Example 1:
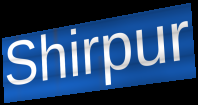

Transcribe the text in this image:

Shirpur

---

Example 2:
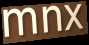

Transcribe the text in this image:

mnx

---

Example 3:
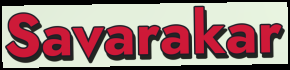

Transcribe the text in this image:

Savarakar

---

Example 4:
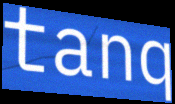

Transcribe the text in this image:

tanq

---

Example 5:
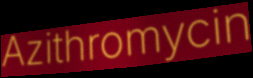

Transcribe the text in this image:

Azithromycin